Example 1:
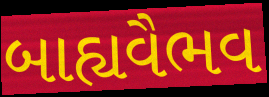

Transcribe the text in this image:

બાહ્યવૈભવ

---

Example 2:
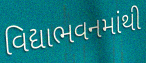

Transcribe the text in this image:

વિદ્યાભવનમાંથી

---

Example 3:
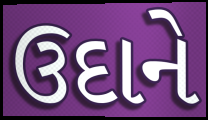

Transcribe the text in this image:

ઉદાને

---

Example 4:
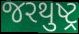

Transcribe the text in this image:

જરથુષ્ટ્ર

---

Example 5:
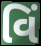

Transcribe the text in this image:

વિં